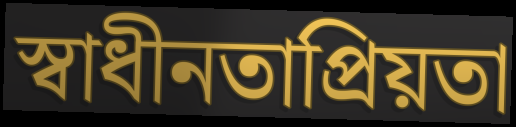
স্বাধীনতাপ্রিয়তা